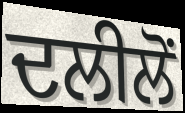
ਦਲੀਲੋਂ